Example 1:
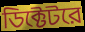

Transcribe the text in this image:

ডিক্টেটরে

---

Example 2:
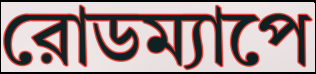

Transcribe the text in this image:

রোডম্যাপে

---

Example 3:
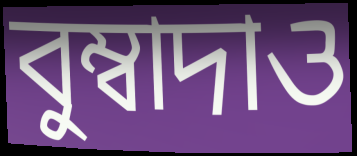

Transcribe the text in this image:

বুম্বাদাও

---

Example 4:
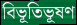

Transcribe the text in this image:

বিভূতিভূষণ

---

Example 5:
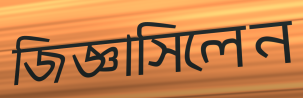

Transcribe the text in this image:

জিজ্ঞাসিলেন